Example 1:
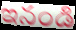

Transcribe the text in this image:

ఇనండి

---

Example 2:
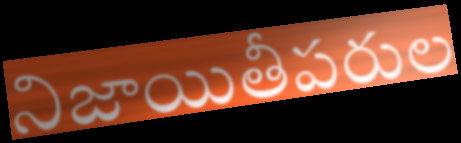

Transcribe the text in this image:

నిజాయితీపరుల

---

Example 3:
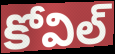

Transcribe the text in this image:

కోవిల్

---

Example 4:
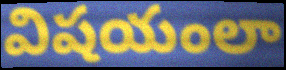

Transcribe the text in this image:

విషయంలా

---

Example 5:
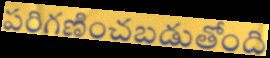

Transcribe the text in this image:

పరిగణించబడుతోంది